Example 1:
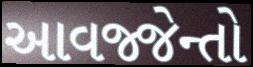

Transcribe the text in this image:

આવજ્જેન્તો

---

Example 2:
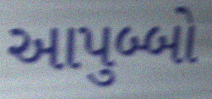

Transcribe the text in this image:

આપુબ્બો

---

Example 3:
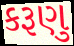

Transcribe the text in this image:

કરૂણુ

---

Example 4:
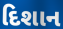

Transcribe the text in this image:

દિશાન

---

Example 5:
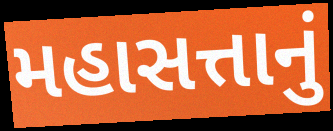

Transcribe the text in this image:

મહાસત્તાનું